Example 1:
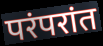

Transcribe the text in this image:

परंपरांत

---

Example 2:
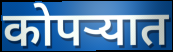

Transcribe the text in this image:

कोपर्‍यात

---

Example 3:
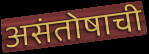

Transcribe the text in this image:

असंतोषाची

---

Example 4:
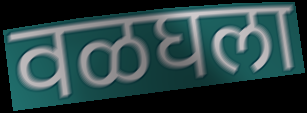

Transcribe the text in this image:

वळघला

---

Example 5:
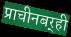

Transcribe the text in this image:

प्राचीनबर्ही